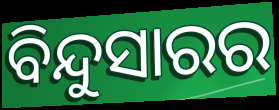
ବିନ୍ଦୁସାରର